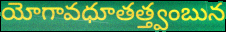
యోగావధూతత్త్వంబున